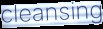
cleansing